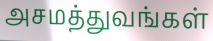
அசமத்துவங்கள்